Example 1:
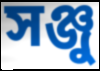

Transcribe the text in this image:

সঞ্জু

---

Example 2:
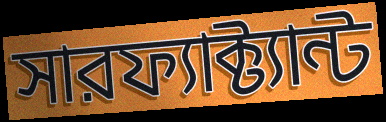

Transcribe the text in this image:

সারফ্যাক্ট্যান্ট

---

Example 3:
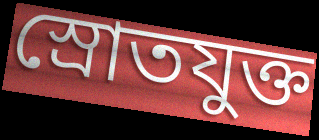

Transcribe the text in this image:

স্রোতযুক্ত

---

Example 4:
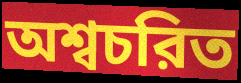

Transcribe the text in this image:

অশ্বচরিত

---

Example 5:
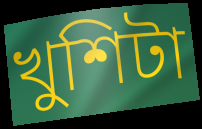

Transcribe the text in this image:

খুশিটা